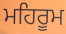
ਮਹਿਰੂਮ